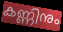
കണ്ണിനും